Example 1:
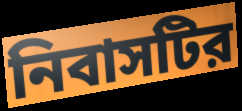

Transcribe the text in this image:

নিবাসটির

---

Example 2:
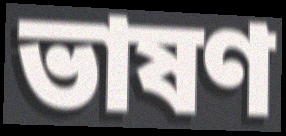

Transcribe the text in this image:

ভাষণ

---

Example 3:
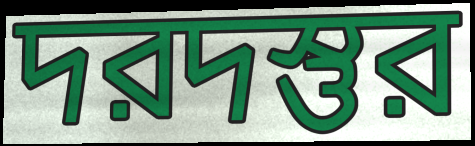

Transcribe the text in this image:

দরদস্তুর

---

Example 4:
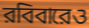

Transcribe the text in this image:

রবিবারেও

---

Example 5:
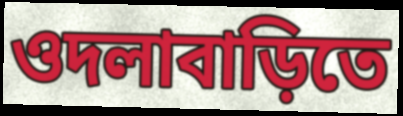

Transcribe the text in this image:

ওদলাবাড়িতে